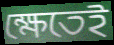
ক্ষেতেই